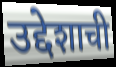
उद्देशाची